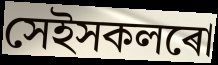
সেইসকলৰো